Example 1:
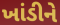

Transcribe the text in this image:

ખાંડીને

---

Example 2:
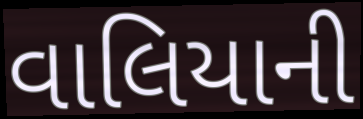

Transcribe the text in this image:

વાલિયાની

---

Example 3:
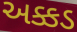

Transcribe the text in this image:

અક્કડ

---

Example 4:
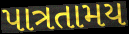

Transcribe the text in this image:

પાત્રતામય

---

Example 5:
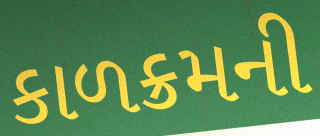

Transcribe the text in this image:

કાળક્રમની